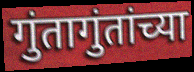
गुंतागुंतांच्या